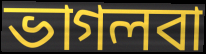
ভাগলবা